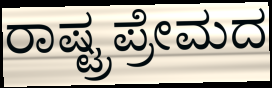
ರಾಷ್ಟ್ರಪ್ರೇಮದ